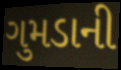
ગુમડાની